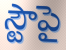
స్టౌపై